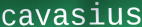
cavasius